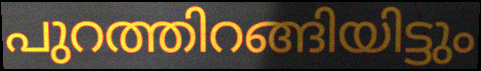
പുറത്തിറങ്ങിയിട്ടും